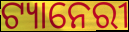
ଟ୍ୟାନେରୀ